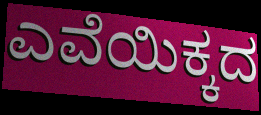
ಎವೆಯಿಕ್ಕದ